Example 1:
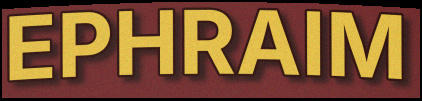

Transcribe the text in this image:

EPHRAIM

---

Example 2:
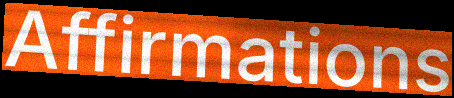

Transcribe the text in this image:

Affirmations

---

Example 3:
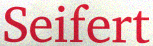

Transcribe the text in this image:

Seifert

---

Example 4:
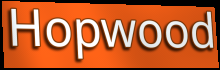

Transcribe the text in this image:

Hopwood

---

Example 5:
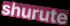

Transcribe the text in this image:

shurute